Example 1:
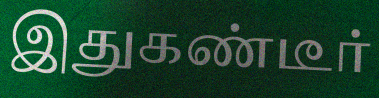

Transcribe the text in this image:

இதுகண்டீர்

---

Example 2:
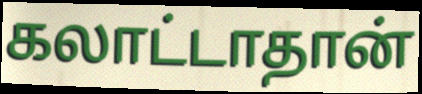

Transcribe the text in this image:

கலாட்டாதான்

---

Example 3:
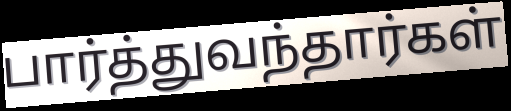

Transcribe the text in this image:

பார்த்துவந்தார்கள்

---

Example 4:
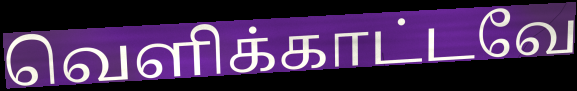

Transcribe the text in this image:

வெளிக்காட்டவே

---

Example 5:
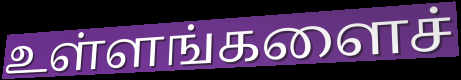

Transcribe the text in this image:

உள்ளங்களைச்